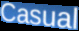
Casual